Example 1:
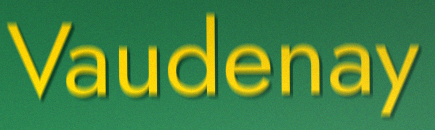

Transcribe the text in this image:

Vaudenay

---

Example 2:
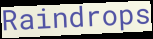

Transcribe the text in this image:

Raindrops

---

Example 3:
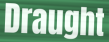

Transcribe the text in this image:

Draught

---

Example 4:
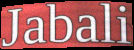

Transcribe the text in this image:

Jabali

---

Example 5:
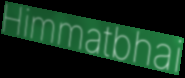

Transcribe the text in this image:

Himmatbhai